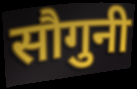
सौगुनी